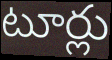
టూర్లు